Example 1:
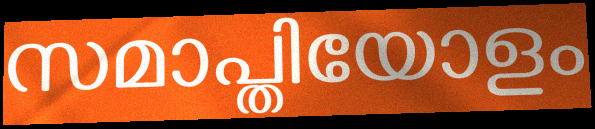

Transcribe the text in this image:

സമാപ്തിയോളം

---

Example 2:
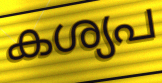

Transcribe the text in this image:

കശ്യപ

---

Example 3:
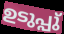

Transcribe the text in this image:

ഉടുപ്പു്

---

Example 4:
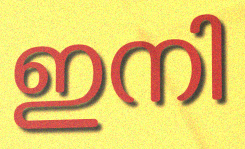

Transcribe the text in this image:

ഇനി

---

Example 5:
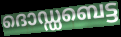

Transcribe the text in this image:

ദൊഡ്ഡബെട്ട